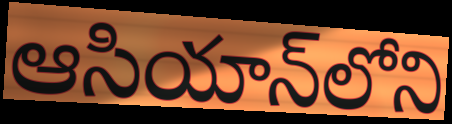
ఆసియాన్‌లోని